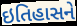
ઇતિહાસને